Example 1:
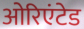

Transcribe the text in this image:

ओरिएंटेड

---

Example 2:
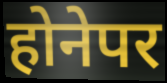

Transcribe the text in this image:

होनेपर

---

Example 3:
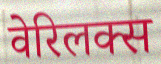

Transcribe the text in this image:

वेरिलक्स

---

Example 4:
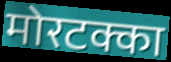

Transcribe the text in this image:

मोरटक्का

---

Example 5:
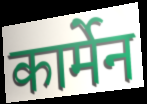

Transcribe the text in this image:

कार्मेन